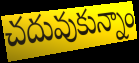
చదువుకున్నాం